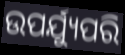
ଉପର୍ଯ୍ୟୁପରି